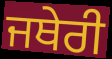
ਜਥੇਰੀ